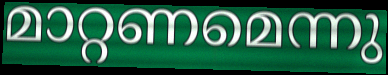
മാറ്റണമെന്നു